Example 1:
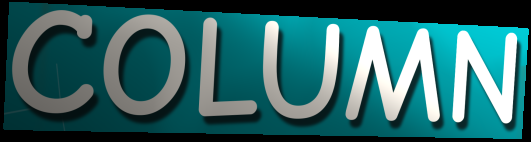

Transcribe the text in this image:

COLUMN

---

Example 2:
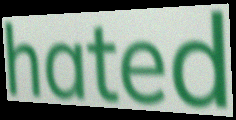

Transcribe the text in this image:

hated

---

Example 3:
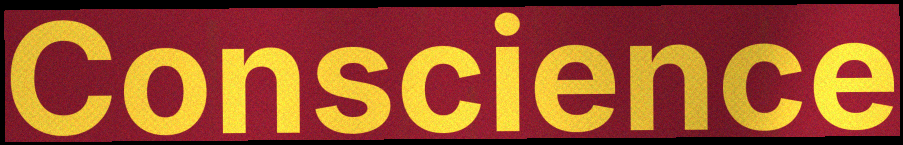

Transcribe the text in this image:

Conscience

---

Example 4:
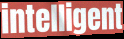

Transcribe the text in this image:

intelligent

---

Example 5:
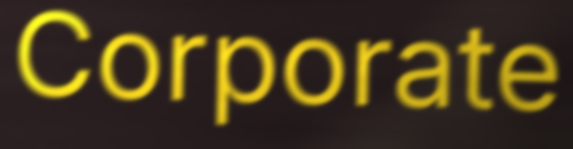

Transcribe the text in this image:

Corporate